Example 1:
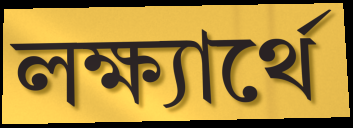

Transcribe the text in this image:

লক্ষ্যার্থে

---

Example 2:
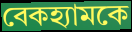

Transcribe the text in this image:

বেকহ্যামকে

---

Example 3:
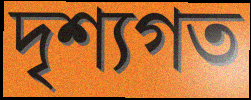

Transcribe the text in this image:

দৃশ্যগত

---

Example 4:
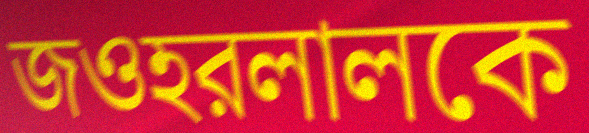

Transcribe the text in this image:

জওহরলালকে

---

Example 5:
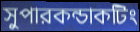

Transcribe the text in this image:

সুপারকন্ডাকটিং